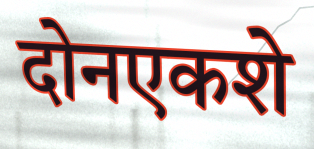
दोनएकशे